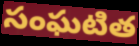
సంఘటిత